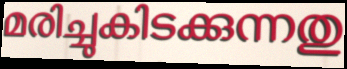
മരിച്ചുകിടക്കുന്നതു